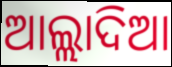
ଆଲ୍ଲାଦିଆ